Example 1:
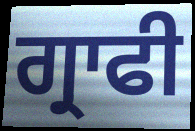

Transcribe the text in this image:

ਗ੍ਰਾਫੀ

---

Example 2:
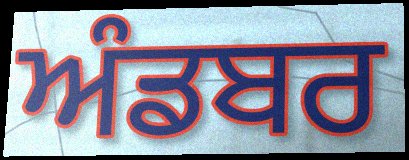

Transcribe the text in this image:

ਅੰਡਬਰ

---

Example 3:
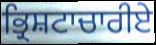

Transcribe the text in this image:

ਭ੍ਰਿਸ਼ਟਾਚਾਰੀਏ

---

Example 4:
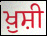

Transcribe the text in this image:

ਖ਼ੁਸ਼ੀ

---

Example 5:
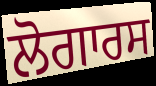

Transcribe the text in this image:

ਲੋਗਾਰਸ